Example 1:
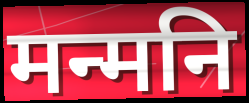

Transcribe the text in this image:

मन्मनि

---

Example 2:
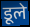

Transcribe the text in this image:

डूले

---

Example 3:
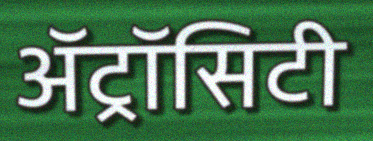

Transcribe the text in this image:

ॲट्रॉसिटी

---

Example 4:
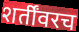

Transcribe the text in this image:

शर्तींवरच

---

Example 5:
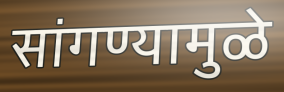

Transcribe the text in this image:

सांगण्यामुळे